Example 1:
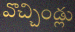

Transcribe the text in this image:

వొచ్చిండ్లు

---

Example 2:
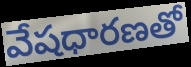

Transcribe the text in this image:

వేషధారణతో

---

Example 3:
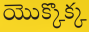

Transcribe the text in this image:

యొక్కొక్క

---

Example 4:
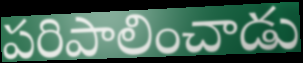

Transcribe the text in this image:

పరిపాలించాడు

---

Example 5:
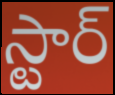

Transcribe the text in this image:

స్టార్